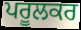
ਪਰੂਲਕਰ